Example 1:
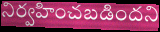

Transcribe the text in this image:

నిర్వహించబడిందని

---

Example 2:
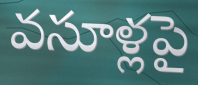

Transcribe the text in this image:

వసూళ్లపై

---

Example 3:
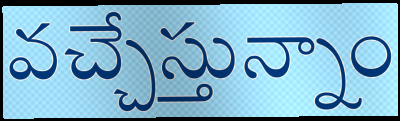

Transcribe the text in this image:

వచ్చేస్తున్నాం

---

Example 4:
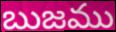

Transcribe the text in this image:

బుజము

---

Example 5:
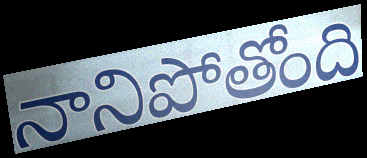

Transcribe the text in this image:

నానిపోతోంది